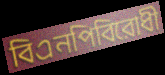
বিএনপিবিরোধী